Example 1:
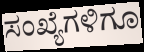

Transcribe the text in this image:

ಸಂಖ್ಯೆಗಳಿಗೂ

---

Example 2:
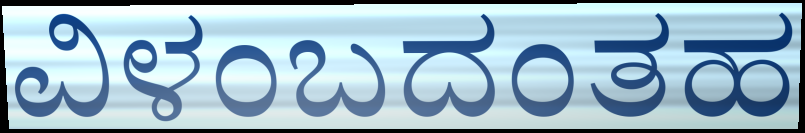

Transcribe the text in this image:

ವಿಳಂಬದಂತಹ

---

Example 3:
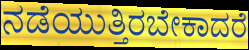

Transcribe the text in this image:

ನಡೆಯುತ್ತಿರಬೇಕಾದರೆ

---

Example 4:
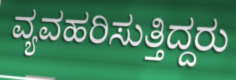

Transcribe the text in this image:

ವ್ಯವಹರಿಸುತ್ತಿದ್ದರು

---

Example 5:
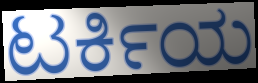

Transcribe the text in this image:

ಟರ್ಕಿಯ